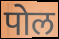
पोल